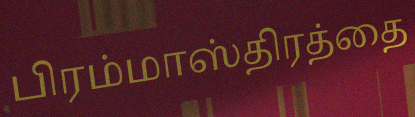
பிரம்மாஸ்திரத்தை